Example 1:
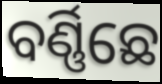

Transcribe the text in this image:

ବର୍ଣ୍ଣିଛେ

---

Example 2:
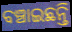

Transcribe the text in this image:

ବଞ୍ଚାଇଛନ୍ତି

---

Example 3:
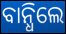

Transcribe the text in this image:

ବାନ୍ଧିଲେ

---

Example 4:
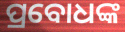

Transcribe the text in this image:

ପ୍ରବୋଧଙ୍କ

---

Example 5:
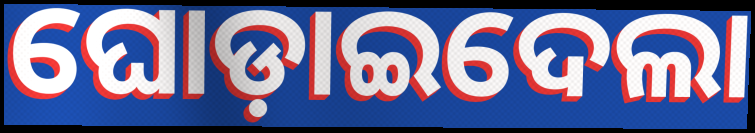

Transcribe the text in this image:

ଘୋଡ଼ାଇଦେଲା